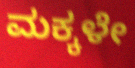
ಮಕ್ಕಳೇ